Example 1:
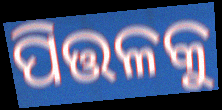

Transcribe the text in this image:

ପିତ୍ତଳକୁ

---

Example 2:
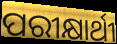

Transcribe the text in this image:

ପରୀକ୍ଷାର୍ଥୀ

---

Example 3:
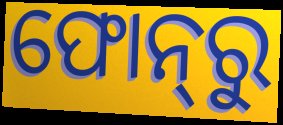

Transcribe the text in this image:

ଫୋନ୍‌ରୁ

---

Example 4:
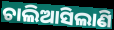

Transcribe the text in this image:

ଚାଲିଆସିଲାଣି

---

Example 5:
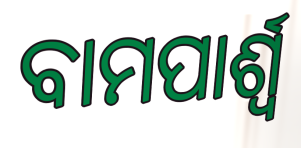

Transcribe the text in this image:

ବାମପାର୍ଶ୍ଵ